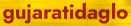
gujaratidaglo